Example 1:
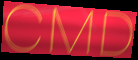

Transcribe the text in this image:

CMD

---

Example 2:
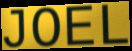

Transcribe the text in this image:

JOEL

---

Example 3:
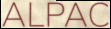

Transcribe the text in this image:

ALPAC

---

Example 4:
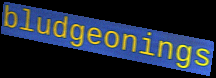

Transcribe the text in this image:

bludgeonings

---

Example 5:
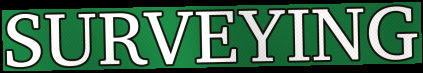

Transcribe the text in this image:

SURVEYING